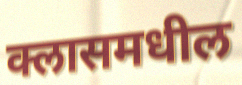
क्लासमधील